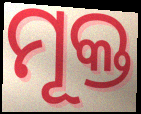
ମୂକ୍ତ